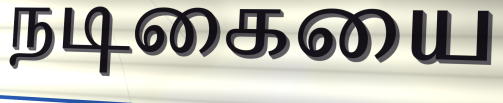
நடிகையை